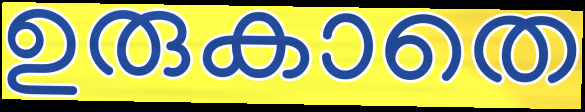
ഉരുകാതെ